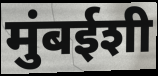
मुंबईशी